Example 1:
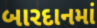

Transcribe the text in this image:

બારદાનમાં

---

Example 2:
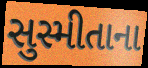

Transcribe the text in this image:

સુસ્મીતાના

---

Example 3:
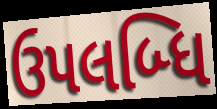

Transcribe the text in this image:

ઉપલબ્ધિ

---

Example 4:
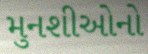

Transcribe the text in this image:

મુનશીઓનો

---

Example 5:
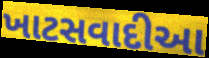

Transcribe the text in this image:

ખાટસવાદીઆ